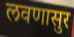
लवणासुर